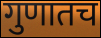
गुणातच